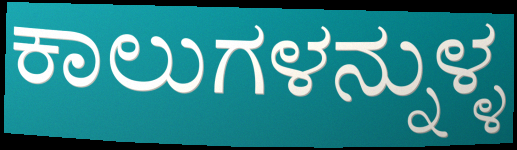
ಕಾಲುಗಳನ್ನುಳ್ಳ